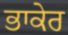
ਭਾਕੇਰ